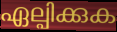
ഏല്പിക്കുക